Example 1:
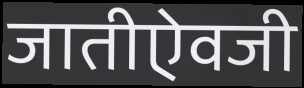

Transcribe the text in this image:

जातीऐवजी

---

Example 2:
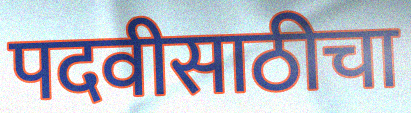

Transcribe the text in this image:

पदवीसाठीचा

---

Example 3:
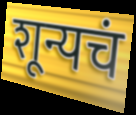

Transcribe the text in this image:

शून्यचं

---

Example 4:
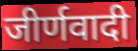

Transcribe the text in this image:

जीर्णवादी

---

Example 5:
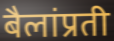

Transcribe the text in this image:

बैलांप्रती